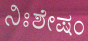
ನಿಃಶೇಷಂ